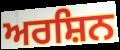
ਅਰਸ਼ਿਨ